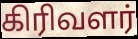
கிரிவளர்